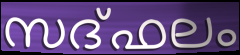
സദ്ഫലം